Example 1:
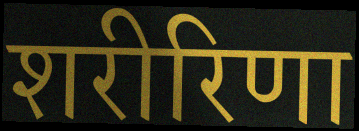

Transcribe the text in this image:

शरीरिणा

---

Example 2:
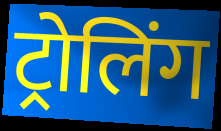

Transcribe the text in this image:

ट्रोलिंग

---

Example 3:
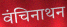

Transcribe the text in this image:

वंचिनाथन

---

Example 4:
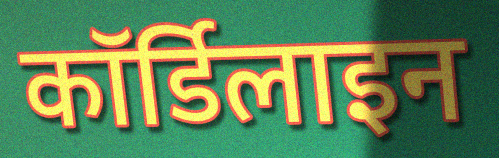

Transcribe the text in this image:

कॉर्डिलाइन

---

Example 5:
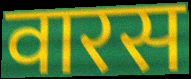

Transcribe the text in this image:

वारस